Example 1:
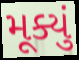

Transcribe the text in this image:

મૂક્યું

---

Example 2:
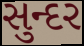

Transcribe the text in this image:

સુન્દર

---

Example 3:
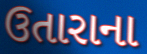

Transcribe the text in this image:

ઉતારાના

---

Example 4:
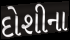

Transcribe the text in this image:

દોશીના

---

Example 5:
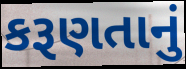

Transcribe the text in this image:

કરૂણતાનું